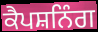
ਕੈਪਸ਼ਨਿੰਗ